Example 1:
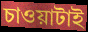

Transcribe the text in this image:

চাওয়াটাই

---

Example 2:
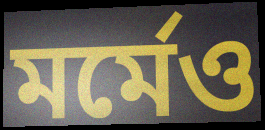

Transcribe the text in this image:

মর্মেও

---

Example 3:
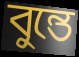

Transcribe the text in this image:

বুন্তে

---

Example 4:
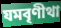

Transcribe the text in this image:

যমবৃণীথা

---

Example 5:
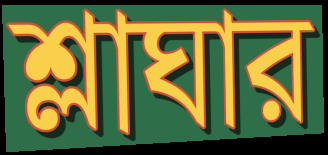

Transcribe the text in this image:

শ্লাঘার